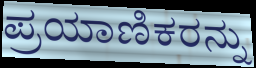
ಪ್ರಯಾಣಿಕರನ್ನು